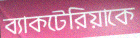
ব্যাকটেরিয়াকে